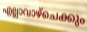
എല്ലാവാഴ്ചെക്കും